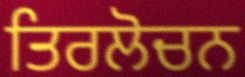
ਤਿਰਲੋਚਨ